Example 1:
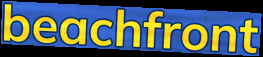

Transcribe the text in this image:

beachfront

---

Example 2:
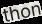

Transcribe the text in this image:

thon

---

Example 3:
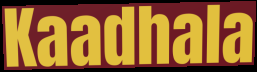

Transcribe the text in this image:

Kaadhala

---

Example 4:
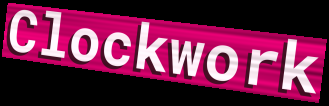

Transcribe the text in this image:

Clockwork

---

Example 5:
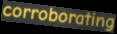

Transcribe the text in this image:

corroborating